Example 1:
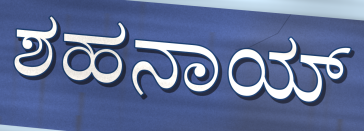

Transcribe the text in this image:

ಶಹನಾಯ್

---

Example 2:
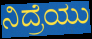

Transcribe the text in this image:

ನಿದ್ರೆಯು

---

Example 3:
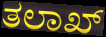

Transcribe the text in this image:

ತಲಾಖ್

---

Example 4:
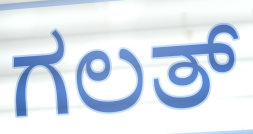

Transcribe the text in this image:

ಗಲತ್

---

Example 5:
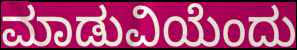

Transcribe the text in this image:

ಮಾಡುವಿಯೆಂದು